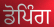
ਡੋਪਿੰਗ